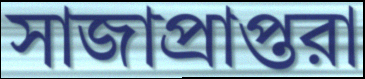
সাজাপ্রাপ্তরা